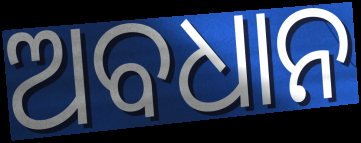
ଅବଧାନ